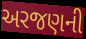
અરજણની